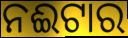
ନଈଟାର